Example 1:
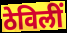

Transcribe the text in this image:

ठेविलीं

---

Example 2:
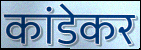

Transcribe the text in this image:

कांडेकर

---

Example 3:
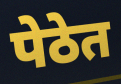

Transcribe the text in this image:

पेठेत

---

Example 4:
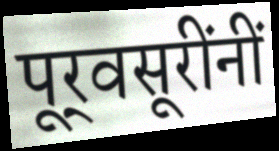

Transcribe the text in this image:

पूर्वसूरींनीं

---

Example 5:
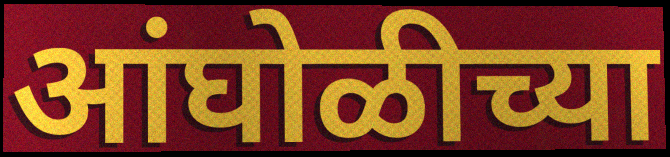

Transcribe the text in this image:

आंघोळीच्या